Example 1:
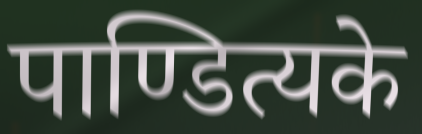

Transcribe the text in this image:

पाण्डित्यके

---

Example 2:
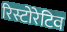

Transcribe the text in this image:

रिस्टोरेटिव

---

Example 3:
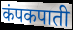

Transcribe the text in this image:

कंपकपाती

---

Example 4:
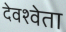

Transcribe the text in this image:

देवश्वेता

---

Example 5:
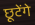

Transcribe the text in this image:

छूटेंगे